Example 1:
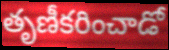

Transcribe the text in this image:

తృణీకరించాడో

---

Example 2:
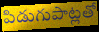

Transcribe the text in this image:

పిడుగుపాట్లతో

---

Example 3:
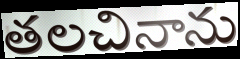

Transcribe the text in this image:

తలచినాను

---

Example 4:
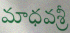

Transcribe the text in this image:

మాధవశ్రీ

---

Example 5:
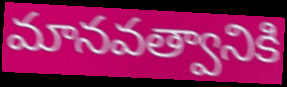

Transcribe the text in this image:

మానవత్వానికి